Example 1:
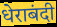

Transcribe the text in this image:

धेराबंदी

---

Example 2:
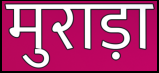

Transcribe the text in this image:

मुराड़ा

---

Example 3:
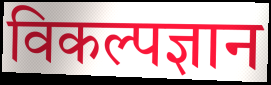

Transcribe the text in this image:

विकल्पज्ञान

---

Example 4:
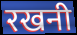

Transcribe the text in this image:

रखनी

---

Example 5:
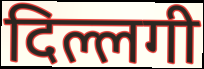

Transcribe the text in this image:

दिल्‍लगी